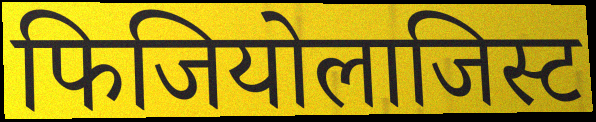
फिजियोलाजिस्ट